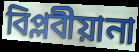
বিপ্লবীয়ানা